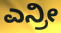
ಎನ್ರೀ